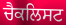
ਚੈਕਲਿਸਟ